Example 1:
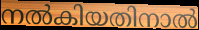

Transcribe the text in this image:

നൽകിയതിനാൽ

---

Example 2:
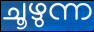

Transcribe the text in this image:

ചൂഴുന്ന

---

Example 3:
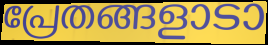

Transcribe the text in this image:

പ്രേതങ്ങളാടാ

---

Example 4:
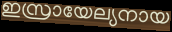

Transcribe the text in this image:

ഇസ്രായേല്യനായ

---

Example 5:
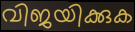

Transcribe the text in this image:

വിജയിക്കുക